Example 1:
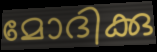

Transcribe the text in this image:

മോദിക്കു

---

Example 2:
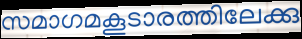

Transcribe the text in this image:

സമാഗമകൂടാരത്തിലേക്കു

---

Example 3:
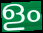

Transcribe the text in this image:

ളം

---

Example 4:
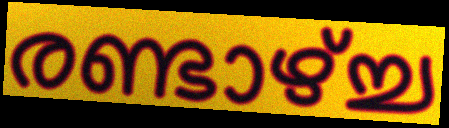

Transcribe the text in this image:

രണ്ടാഴ്ച്ച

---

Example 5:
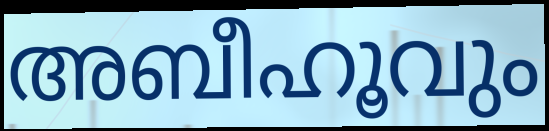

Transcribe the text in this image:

അബീഹൂവും